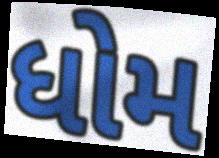
ધોમ